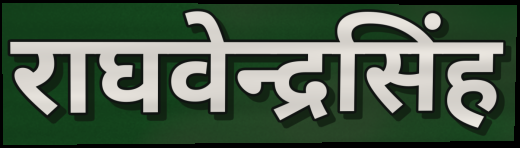
राघवेन्द्रसिंह